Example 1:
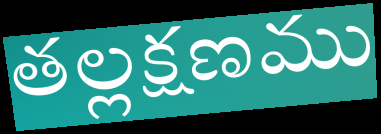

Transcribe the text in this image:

తల్లక్షణము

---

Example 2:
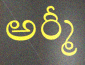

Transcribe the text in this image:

అర్మీ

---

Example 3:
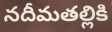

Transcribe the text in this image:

నదీమతల్లికి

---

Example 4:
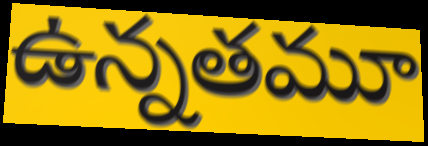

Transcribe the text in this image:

ఉన్నతమూ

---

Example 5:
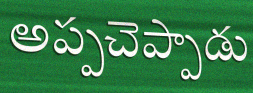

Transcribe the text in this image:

అప్పచెప్పాడు